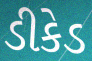
ડીકેડ